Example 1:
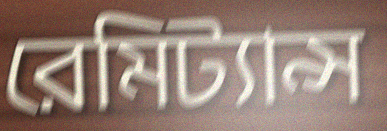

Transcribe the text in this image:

রেমিট্যান্স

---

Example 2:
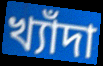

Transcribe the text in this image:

খ্যাঁদা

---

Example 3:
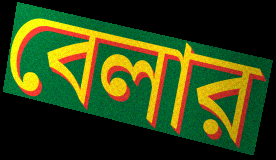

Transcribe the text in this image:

বেলার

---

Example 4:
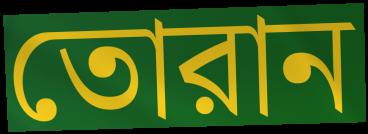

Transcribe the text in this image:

তোরান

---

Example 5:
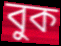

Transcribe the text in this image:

বুক